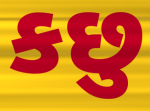
કછુ